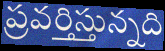
ప్రవర్తిస్తున్నది